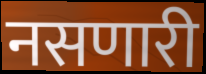
नसणारी